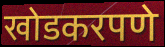
खोडकरपणे